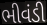
ભીવંડી